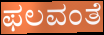
ಫಲವಂತೆ